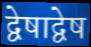
द्वेषाद्वेष